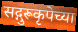
सद्गुरूकृपेच्या